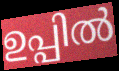
ഉപ്പിൽ